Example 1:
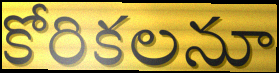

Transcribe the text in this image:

కోరికలనూ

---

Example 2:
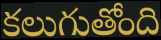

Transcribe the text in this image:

కలుగుతోంది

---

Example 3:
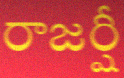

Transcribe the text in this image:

రాజర్షీ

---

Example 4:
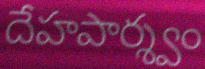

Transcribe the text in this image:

దేహపార్శ్వం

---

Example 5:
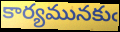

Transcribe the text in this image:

కార్యమునకుఁ